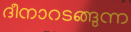
ദീനാറടങ്ങുന്ന